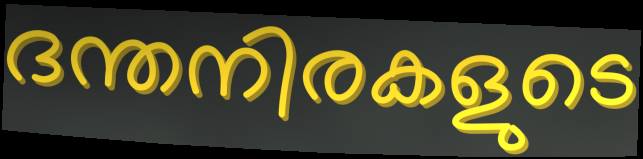
ദന്തനിരകളുടെ